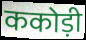
ककोड़ी